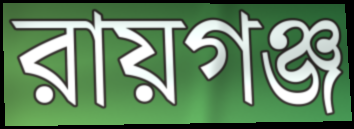
রায়গঞ্জ